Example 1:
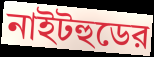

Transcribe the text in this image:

নাইটহুডের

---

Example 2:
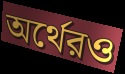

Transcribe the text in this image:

অর্থেরও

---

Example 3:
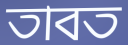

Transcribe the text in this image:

তাবত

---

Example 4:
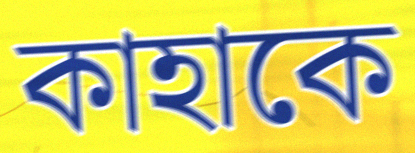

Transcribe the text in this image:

কাহাকে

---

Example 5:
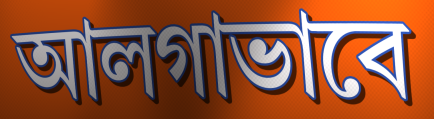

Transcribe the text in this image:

আলগাভাবে